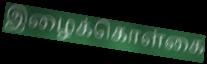
இழைக்கொள்கை